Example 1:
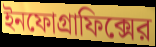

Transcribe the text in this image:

ইনফোগ্রাফিক্সের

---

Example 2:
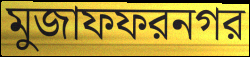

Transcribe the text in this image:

মুজাফফরনগর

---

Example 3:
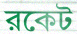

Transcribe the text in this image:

রকেট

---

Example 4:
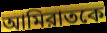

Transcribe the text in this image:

আমিরাতকে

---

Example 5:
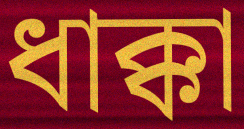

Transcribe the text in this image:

ধাক্কা